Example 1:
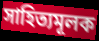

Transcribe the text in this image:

সাহিত্যমূলক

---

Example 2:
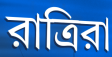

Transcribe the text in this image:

রাত্রিরা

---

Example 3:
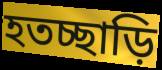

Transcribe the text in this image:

হতচ্ছাড়ি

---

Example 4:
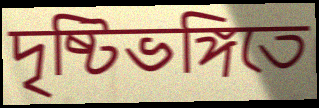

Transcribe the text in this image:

দৃষ্টিভঙ্গিতে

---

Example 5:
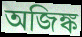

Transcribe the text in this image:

অজিঙ্ক